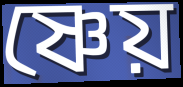
ষ্ণেয়